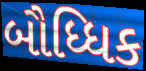
બૌધ્ધિક